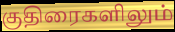
குதிரைகளிலும்